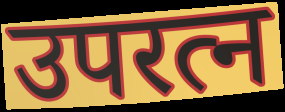
उपरत्न